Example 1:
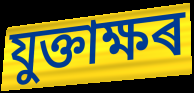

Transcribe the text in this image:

যুক্তাক্ষৰ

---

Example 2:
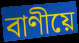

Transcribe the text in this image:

বাণীয়ে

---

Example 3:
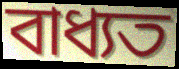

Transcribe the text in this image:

বাধ্যত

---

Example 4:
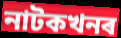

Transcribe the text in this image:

নাটকখনৰ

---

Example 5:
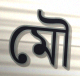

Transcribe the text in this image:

মৌ